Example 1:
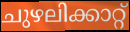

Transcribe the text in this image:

ചുഴലിക്കാറ്റ്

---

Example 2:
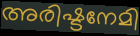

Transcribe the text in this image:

അരിഷ്ടനേമി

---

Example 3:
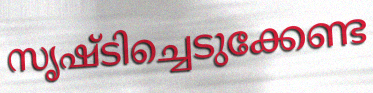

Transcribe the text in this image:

സൃഷ്ടിച്ചെടുക്കേണ്ട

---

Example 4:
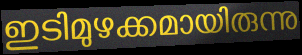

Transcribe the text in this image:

ഇടിമുഴക്കമായിരുന്നു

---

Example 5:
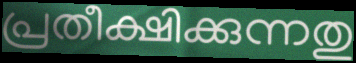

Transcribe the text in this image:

പ്രതീക്ഷിക്കുന്നതു